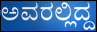
ಅವರಲ್ಲಿದ್ದ